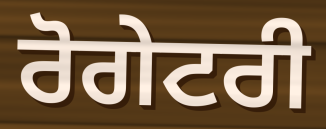
ਰੋਗੇਟਰੀ